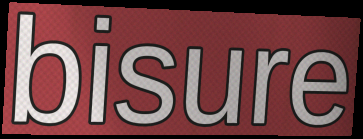
bisure